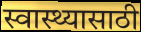
स्वास्थ्यासाठी